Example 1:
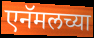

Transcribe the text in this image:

एनॅमलच्या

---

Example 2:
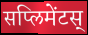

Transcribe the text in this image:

सप्लिमेंटस्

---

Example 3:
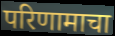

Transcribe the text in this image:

परिणामाचा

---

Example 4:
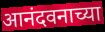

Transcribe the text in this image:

आनंदवनाच्या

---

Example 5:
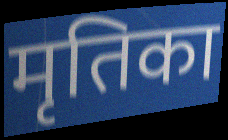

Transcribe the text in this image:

मृतिका